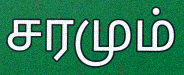
சரமும்